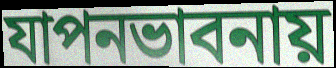
যাপনভাবনায়